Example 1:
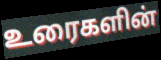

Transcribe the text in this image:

உரைகளின்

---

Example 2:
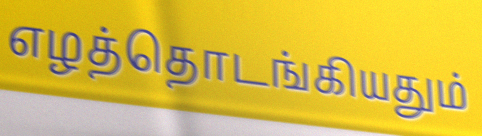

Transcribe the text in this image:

எழத்தொடங்கியதும்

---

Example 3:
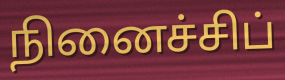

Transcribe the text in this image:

நினைச்சிப்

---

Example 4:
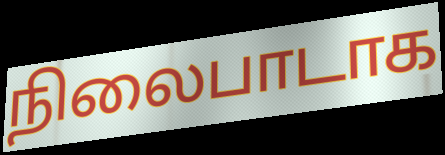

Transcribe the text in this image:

நிலைபாடாக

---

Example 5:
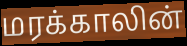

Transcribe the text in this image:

மரக்காலின்